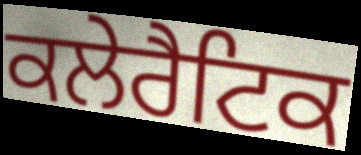
ਕਲੇਰੈਟਿਕ